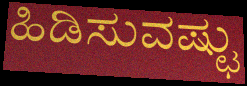
ಹಿಡಿಸುವಷ್ಟು